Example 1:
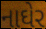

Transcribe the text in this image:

નાઘેર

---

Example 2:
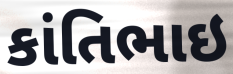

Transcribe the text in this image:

કાંતિભાઇ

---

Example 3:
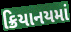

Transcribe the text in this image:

ક્રિયાનયમાં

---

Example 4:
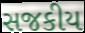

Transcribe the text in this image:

સજકીય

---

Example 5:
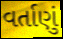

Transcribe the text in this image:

વર્તાણું